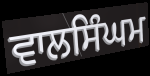
ਵਾਲਸਿੰਘਮ